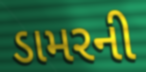
ડામરની